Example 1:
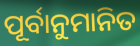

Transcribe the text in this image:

ପୂର୍ବାନୁମାନିତ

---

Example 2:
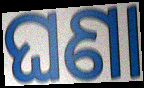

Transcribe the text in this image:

ଘଣା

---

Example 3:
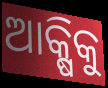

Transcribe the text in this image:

ଆକ୍ଷିକୁ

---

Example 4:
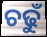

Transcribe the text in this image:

ଚଢୁଁ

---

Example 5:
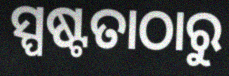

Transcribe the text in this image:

ସ୍ପଷ୍ଟତାଠାରୁ